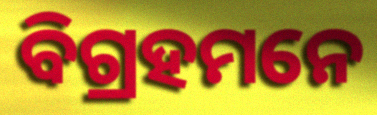
ବିଗ୍ରହମନେ